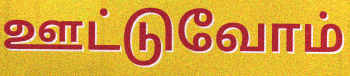
ஊட்டுவோம்